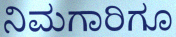
ನಿಮಗಾರಿಗೂ